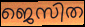
ജെസിത